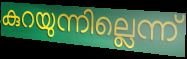
കുറയുന്നില്ലെന്ന്